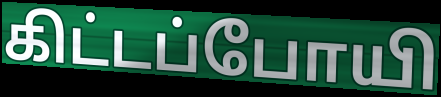
கிட்டப்போயி